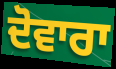
ਦੋਵਾਰਾ